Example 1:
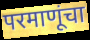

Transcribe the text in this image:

परमाणूंचा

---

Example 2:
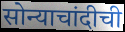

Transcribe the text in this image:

सोन्याचांदीची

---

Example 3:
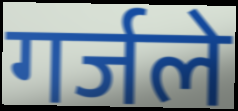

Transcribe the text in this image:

गर्जले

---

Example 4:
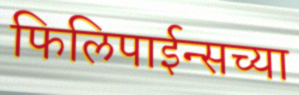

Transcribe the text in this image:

फिलिपाईन्सच्या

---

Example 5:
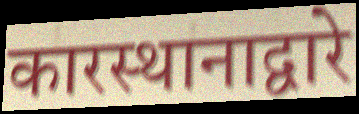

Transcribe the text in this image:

कारस्थानाद्वारे